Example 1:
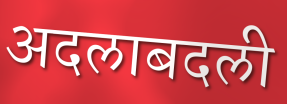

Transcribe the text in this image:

अदलाबदली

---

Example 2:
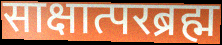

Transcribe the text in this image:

साक्षात्परब्रह्म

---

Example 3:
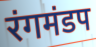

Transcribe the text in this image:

रंगमंडप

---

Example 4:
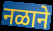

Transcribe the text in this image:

नळाने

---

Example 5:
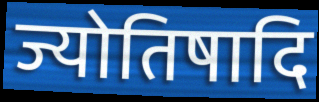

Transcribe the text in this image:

ज्योतिषादि